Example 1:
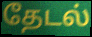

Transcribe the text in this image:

தேடல்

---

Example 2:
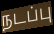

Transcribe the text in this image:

நடப்பு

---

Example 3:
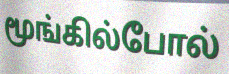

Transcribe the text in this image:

மூங்கில்போல்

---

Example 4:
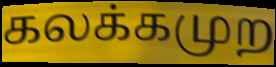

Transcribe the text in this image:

கலக்கமுற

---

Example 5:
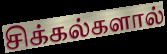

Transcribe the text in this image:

சிக்கல்களால்